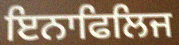
ਇਨਾਫਿਲਿਜ